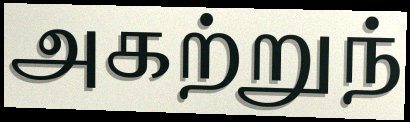
அகற்றுந்